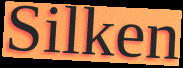
Silken